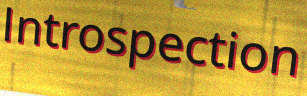
Introspection